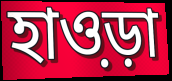
হাও়ড়া